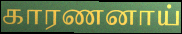
காரணனாய்